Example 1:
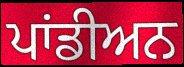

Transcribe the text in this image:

ਪਾਂਡੀਅਨ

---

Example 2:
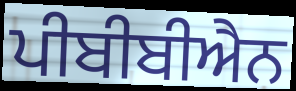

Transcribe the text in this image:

ਪੀਬੀਬੀਐਨ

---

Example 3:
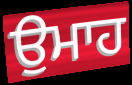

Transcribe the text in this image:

ਉਮਾਹ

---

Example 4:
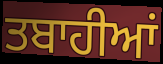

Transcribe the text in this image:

ਤਬਾਹੀਆਂ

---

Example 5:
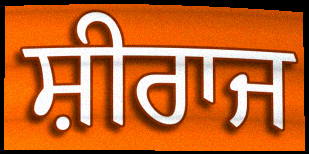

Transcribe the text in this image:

ਸ਼ੀਰਾਜ